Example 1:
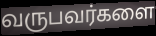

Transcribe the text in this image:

வருபவர்களை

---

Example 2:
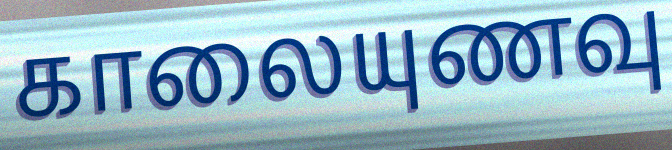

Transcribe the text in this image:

காலையுணவு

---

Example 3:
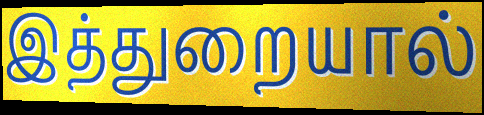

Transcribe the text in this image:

இத்துறையால்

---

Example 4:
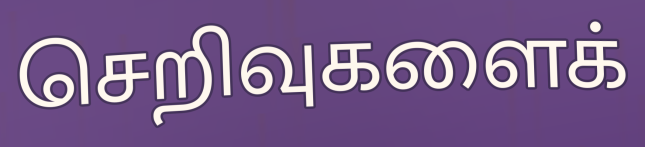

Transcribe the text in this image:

செறிவுகளைக்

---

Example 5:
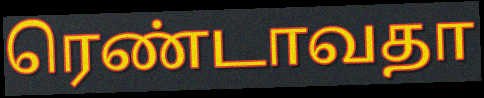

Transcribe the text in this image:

ரெண்டாவதா